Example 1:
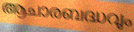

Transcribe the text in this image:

ആചാരബദ്ധവും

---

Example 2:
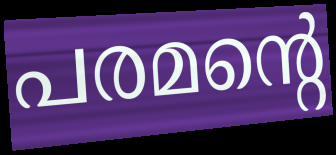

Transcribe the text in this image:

പരമന്റെ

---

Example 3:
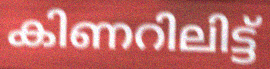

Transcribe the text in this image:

കിണറിലിട്ട്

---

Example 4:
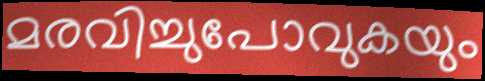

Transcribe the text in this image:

മരവിച്ചുപോവുകയും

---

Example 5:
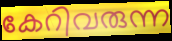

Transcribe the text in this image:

കേറിവരുന്ന